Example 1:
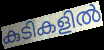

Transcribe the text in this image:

കുടികളിൽ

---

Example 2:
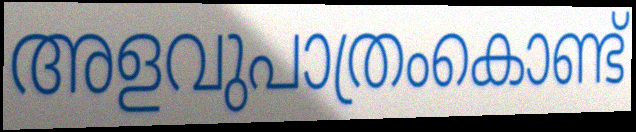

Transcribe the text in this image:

അളവുപാത്രംകൊണ്ട്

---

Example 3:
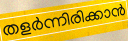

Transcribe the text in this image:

തളർന്നിരിക്കാൻ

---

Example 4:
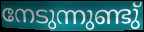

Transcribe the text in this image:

നേടുന്നുണ്ടു്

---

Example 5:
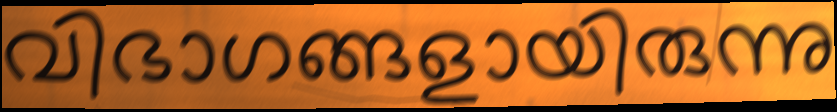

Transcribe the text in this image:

വിഭാഗങ്ങളായിരുന്നു